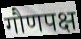
गौणपक्ष